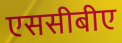
एससीबीए